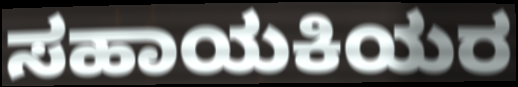
ಸಹಾಯಕಿಯರ